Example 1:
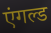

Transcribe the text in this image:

एंगल्ड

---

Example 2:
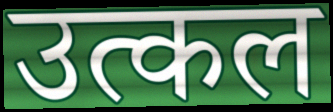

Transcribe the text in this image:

उत्कल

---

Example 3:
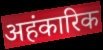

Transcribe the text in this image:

अहंकारिक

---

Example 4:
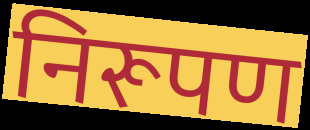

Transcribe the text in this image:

निरूपण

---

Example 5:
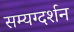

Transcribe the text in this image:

सम्यग्दर्शन